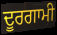
ਦੂਰਗਾਮੀ